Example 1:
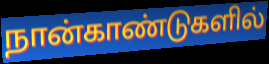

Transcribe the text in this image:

நான்காண்டுகளில்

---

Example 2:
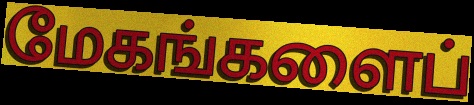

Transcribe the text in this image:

மேகங்களைப்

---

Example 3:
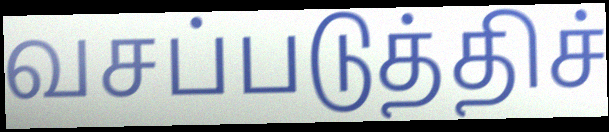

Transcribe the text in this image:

வசப்படுத்திச்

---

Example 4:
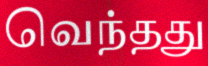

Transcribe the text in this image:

வெந்தது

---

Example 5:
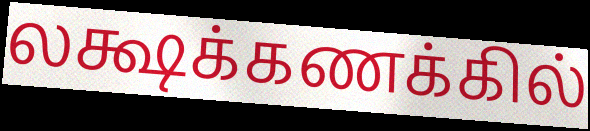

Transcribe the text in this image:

லக்ஷக்கணக்கில்